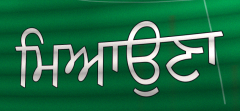
ਮਿਆਉਣਾ